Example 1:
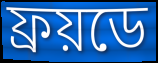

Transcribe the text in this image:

ফ্ৰয়ডে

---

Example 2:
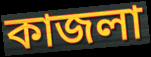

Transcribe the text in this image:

কাজলা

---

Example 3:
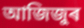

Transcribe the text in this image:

আজিজুৰ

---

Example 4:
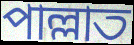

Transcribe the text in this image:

পাল্লাত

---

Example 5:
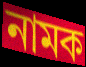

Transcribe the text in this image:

নামক